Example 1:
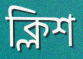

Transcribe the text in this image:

ক্লিশ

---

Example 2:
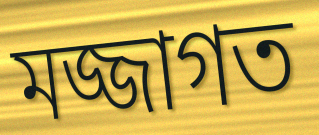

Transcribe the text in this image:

মজ্জাগত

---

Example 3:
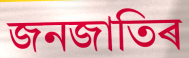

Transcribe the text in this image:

জনজাতিৰ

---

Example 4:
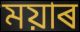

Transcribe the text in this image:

ময়াৰ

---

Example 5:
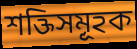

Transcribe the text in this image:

শক্তিসমূহক